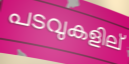
പടവുകളില്